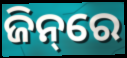
ଜିନ୍‌ରେ